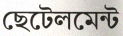
ছেটেলমেন্ট